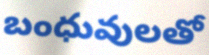
బంధువులతో